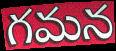
గమన